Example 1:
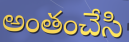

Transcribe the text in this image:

అంతంచేసి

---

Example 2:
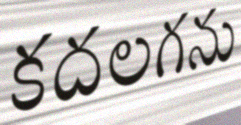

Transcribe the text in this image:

కదలగను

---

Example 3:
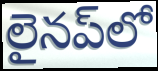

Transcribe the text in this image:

లైనప్‌లో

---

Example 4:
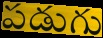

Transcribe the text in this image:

పడుగు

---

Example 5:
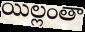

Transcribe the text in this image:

యిల్లంతా